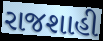
રાજશાહી